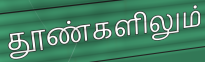
தூண்களிலும்